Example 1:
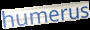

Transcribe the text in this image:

humerus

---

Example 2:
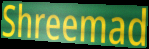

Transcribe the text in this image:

Shreemad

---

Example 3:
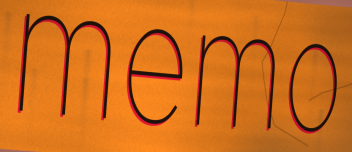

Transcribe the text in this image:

memo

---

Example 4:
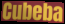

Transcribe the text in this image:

Cubeba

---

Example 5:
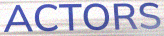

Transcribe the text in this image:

ACTORS